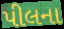
પીલના